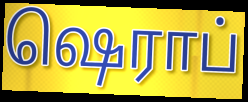
ஷெராப்